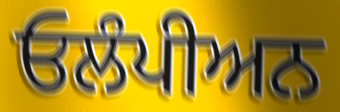
ਓਲੰਪੀਅਨ